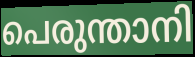
പെരുന്താനി